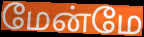
மேன்மே